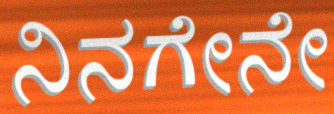
ನಿನಗೇನೇ